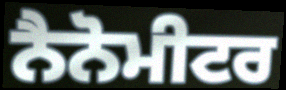
ਨੈਨੋਮੀਟਰ